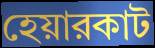
হেয়ারকাট